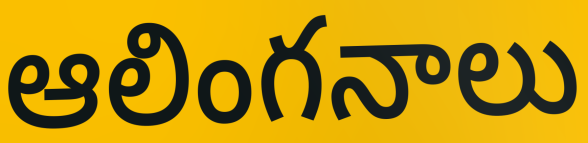
ఆలింగనాలు